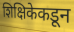
शिक्षिकेकडून